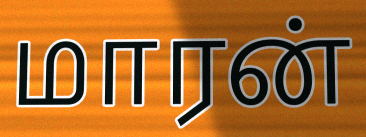
மாரன்